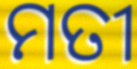
ମତୀ